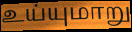
உய்யுமாறு